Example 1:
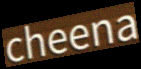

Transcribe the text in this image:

cheena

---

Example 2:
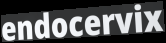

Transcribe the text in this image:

endocervix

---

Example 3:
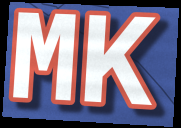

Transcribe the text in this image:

MK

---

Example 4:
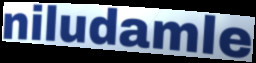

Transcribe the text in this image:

niludamle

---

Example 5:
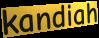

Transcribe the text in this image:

kandiah